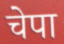
चेपा